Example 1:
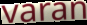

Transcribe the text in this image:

varan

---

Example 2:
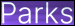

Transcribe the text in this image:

Parks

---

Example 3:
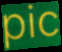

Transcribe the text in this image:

pic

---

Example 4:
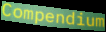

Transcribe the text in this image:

Compendium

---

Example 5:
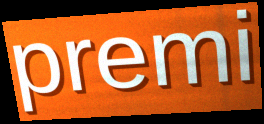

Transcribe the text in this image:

premi